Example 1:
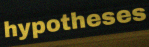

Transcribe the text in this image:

hypotheses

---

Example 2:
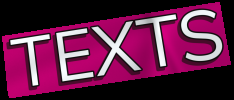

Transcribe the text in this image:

TEXTS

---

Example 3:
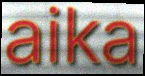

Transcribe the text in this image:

aika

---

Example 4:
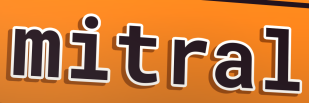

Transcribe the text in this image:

mitral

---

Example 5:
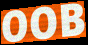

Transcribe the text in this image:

OOB